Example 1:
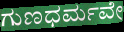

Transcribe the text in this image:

ಗುಣಧರ್ಮವೇ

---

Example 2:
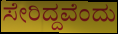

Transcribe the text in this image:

ಸೇರಿದ್ದವೆಂದು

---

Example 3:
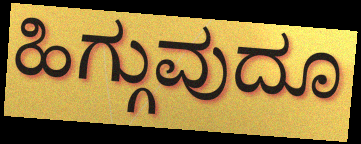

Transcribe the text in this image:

ಹಿಗ್ಗುವುದೂ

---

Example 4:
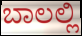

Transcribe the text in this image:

ಬಾಲಲ್ಲಿ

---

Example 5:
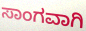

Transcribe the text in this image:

ಸಾಂಗವಾಗಿ